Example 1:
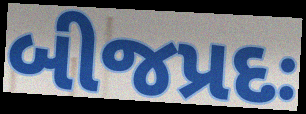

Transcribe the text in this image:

બીજપ્રદઃ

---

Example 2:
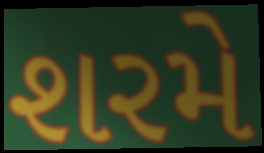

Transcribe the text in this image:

શરમે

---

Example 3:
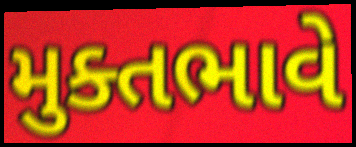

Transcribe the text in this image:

મુક્તભાવે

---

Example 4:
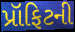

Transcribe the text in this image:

પ્રૉફિટની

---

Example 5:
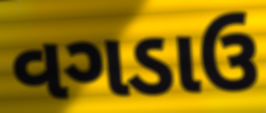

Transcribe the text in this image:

વગડાઉ